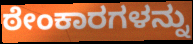
ಠೇಂಕಾರಗಳನ್ನು